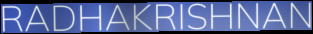
RADHAKRISHNAN